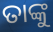
ତାଙ୍କୁ